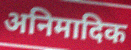
अनिमादिक